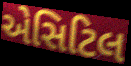
એસિટિલ